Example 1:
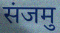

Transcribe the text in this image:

संजमु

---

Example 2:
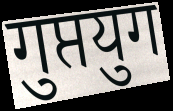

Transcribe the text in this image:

गुप्तयुग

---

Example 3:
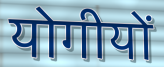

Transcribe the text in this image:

योगीयों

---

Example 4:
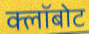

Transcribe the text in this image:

क्लॉबोट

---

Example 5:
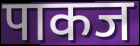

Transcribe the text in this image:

पाकज